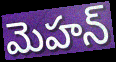
మెహన్